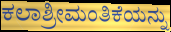
ಕಲಾಶ್ರೀಮಂತಿಕೆಯನ್ನು